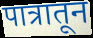
पात्रातून